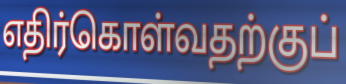
எதிர்கொள்வதற்குப்